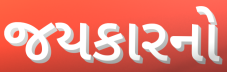
જયકારનો